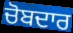
ਚੋਬਦਾਰ